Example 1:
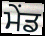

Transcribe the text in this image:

ਮੇਂਡ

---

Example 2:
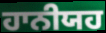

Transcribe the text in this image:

ਹਾਨੀਯਹ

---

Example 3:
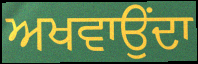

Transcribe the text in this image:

ਅਖਵਾਉਂਦਾ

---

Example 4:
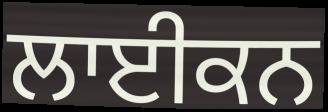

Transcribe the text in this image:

ਲਾਈਕਨ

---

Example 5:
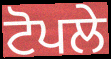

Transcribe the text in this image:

ਟੋਪਲੇ